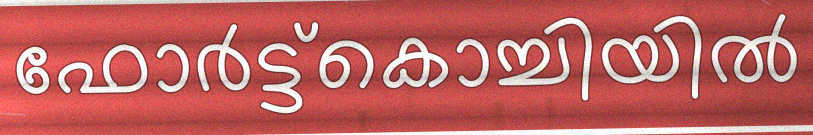
ഫോർട്ട്കൊച്ചിയിൽ